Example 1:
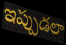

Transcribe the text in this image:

ఇప్పుడలా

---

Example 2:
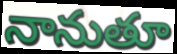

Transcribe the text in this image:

నానుతూ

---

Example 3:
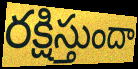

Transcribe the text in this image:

రక్షిస్తుందా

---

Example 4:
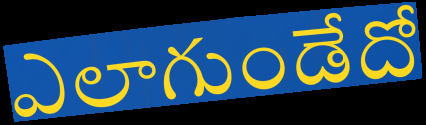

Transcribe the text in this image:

ఎలాగుండేదో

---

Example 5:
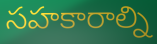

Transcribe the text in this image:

సహకారాల్ని